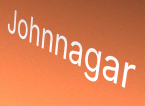
Johnnagar